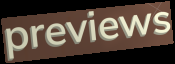
previews